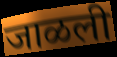
जाळली